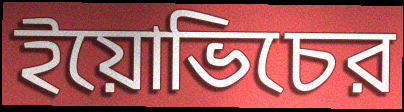
ইয়োভিচের